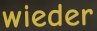
wieder